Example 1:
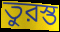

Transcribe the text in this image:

তুরস্ত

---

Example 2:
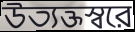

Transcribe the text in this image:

উত্যক্তস্বরে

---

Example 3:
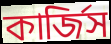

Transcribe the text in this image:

কার্জিস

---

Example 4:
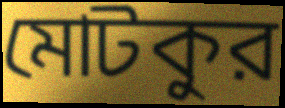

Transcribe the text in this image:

মোটকুর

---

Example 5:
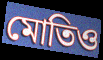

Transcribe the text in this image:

মোতিও